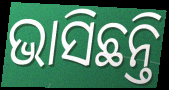
ଭାସିଛନ୍ତି